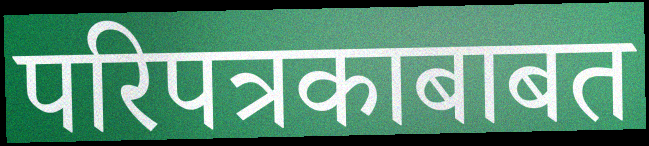
परिपत्रकाबाबत